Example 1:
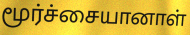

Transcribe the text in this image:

மூர்ச்சையானாள்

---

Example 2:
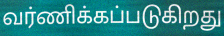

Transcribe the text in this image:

வர்ணிக்கப்படுகிறது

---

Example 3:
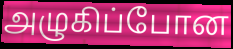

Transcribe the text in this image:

அழுகிப்போன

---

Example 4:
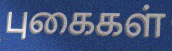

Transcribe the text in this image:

புகைகள்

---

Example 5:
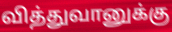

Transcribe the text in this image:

வித்துவானுக்கு